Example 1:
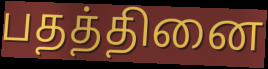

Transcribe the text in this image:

பதத்தினை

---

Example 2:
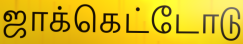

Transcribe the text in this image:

ஜாக்கெட்டோடு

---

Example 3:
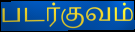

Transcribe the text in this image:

படர்குவம்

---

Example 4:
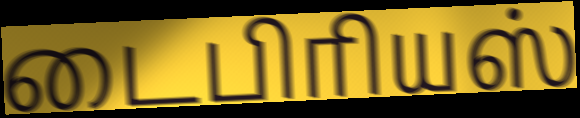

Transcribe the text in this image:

டைபிரியஸ்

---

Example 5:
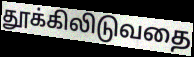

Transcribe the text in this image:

தூக்கிலிடுவதை